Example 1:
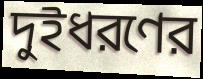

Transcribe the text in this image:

দুইধরণের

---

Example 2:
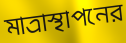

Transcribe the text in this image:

মাত্রাস্থাপনের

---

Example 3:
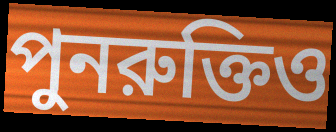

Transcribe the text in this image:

পুনরুক্তিও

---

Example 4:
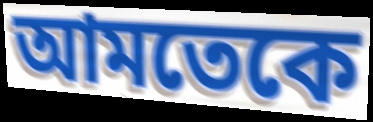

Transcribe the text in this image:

আমতেকে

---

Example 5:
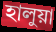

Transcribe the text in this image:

হালুয়া